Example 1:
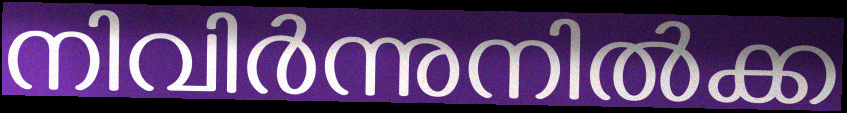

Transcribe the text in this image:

നിവിർന്നുനിൽക്ക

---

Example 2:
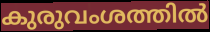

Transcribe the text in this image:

കുരുവംശത്തിൽ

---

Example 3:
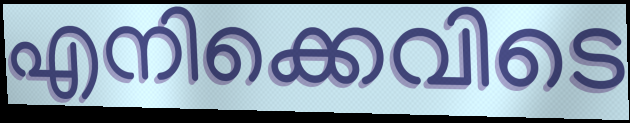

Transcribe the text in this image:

എനിക്കെവിടെ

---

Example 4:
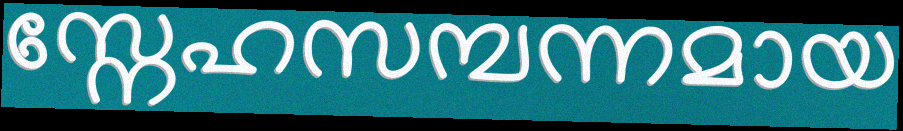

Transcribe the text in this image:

സ്നേഹസമ്പന്നമായ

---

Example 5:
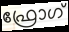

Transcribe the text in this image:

ഫ്രോഗ്